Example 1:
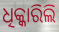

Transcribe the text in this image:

ଧିକ୍କାରିଲି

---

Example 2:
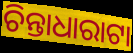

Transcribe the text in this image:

ଚିନ୍ତାଧାରାଟା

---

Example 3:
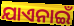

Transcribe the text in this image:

ଯାଏନାଇଁ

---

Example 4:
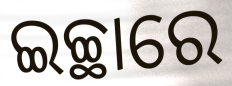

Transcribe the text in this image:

ଇଚ୍ଛାରେ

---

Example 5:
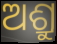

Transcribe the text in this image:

ଅଶ୍ରୁ